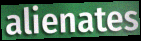
alienates